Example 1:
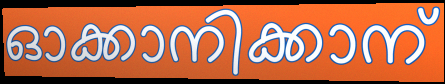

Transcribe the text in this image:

ഓക്കാനിക്കാന്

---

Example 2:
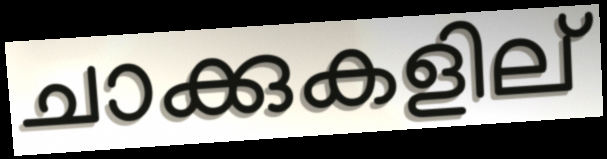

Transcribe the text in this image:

ചാക്കുകളില്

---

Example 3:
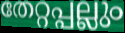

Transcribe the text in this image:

തേറ്റപ്പല്ലും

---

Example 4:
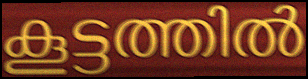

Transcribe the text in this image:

കൂട്ടത്തിൽ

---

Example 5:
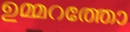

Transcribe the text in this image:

ഉമ്മറത്തോ